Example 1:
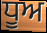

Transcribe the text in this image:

ਧੂਅ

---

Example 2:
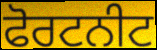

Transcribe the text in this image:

ਫੋਰਟਨੀਟ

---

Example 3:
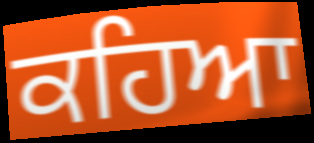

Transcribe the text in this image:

ਕਹਿਆ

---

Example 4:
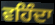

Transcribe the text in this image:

ਵਹਿੰਦਾ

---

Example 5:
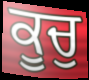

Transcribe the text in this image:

ਕੂਚੁ